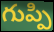
గుప్పి